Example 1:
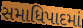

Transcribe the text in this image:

સમાધિપાદમાં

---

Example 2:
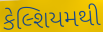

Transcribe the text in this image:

કેલ્શિયમથી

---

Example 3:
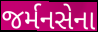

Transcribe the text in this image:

જર્મનસેના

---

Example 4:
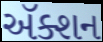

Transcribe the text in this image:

ઍક્શન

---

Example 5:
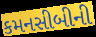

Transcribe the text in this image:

કમનસીબીની